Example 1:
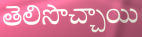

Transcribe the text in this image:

తెలిసొచ్చాయి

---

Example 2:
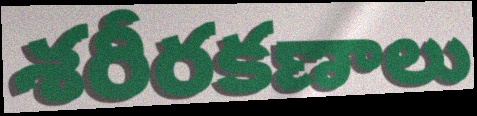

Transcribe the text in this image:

శరీరకణాలు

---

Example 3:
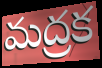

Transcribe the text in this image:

మద్రక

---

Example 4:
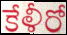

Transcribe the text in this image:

కేళీరో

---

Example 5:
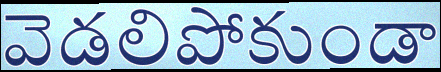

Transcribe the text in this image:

వెడలిపోకుండా